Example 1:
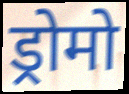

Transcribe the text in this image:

ड्रोमो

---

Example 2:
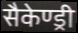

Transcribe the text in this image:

सैकेण्ड्री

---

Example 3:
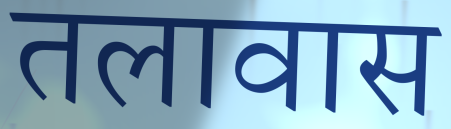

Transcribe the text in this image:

तलावास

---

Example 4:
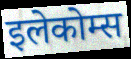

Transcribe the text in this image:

इलेकोम्स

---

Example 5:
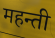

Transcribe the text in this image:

महन्ती